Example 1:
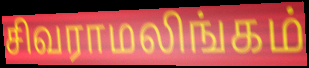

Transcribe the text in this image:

சிவராமலிங்கம்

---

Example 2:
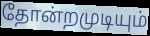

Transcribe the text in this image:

தோன்றமுடியும்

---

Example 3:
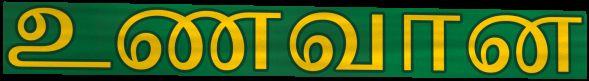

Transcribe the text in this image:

உணவான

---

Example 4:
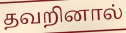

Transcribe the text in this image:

தவறினால்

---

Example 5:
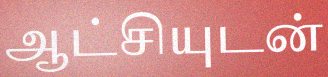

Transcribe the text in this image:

ஆட்சியுடன்